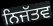
ਨਿਜੱਤਵ